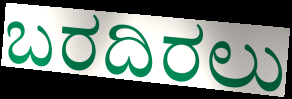
ಬರದಿರಲು